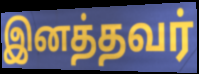
இனத்தவர்